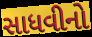
સાધવીનો